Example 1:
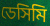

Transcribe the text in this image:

ডেসিমি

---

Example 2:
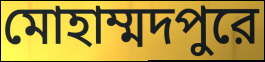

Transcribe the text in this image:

মোহাম্মদপুরে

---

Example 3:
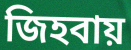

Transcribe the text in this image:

জিহবায়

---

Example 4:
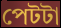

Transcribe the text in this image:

পেটটা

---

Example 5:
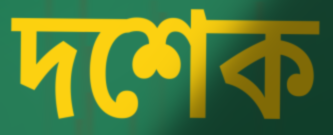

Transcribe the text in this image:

দশেক